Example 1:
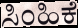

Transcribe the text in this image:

ಸಿಂಹಿಕೆ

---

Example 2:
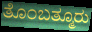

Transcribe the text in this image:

ತೊಂಬತ್ಮೂರು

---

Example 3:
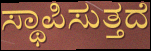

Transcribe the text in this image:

ಸ್ಥಾಪಿಸುತ್ತದೆ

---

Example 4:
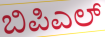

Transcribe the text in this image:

ಬಿಪಿಎಲ್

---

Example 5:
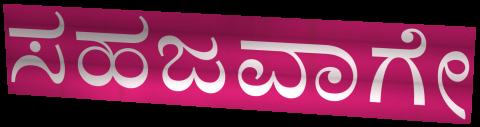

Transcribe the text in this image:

ಸಹಜವಾಗೇ